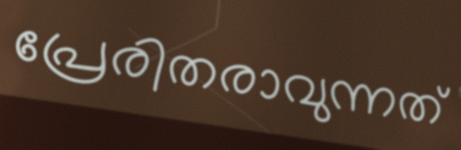
പ്രേരിതരാവുന്നത്